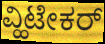
ವ್ಹಿಟೇಕರ್